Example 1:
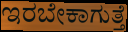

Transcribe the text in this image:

ಇರಬೇಕಾಗುತ್ತೆ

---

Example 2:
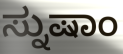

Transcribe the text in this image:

ಸ್ನುಷಾಂ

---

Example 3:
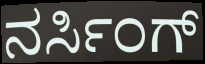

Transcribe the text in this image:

ನರ್ಸಿಂಗ್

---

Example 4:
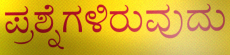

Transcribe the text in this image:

ಪ್ರಶ್ನೆಗಳಿರುವುದು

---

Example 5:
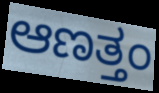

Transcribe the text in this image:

ಆಣತ್ತಂ